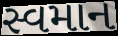
સ્વમાન